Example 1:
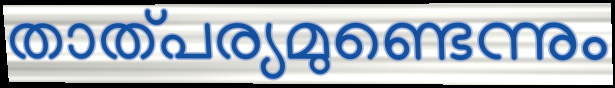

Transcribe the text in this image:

താത്പര്യമുണ്ടെന്നും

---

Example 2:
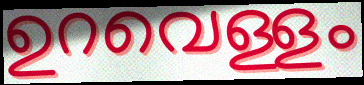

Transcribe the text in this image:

ഉറവെള്ളം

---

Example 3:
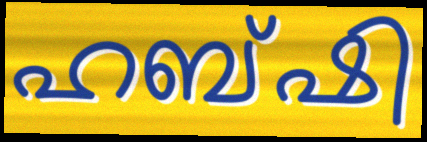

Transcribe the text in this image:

ഹബ്ഷി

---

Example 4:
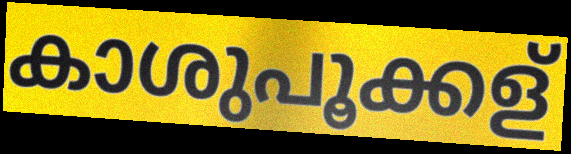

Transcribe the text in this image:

കാശുപൂക്കള്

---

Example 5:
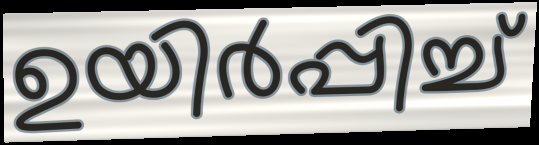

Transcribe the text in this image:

ഉയിർപ്പിച്ച്